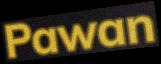
Pawan